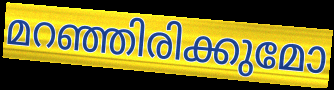
മറഞ്ഞിരിക്കുമോ